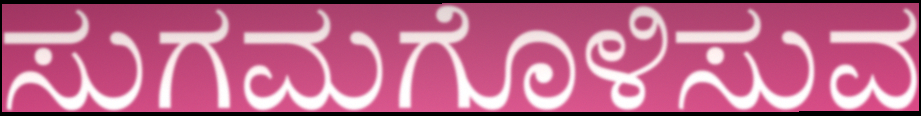
ಸುಗಮಗೊಳಿಸುವ